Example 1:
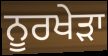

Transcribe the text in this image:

ਨੂਰਖੇੜਾ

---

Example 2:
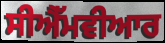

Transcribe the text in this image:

ਸੀਐੱਮਵੀਆਰ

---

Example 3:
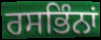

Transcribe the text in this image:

ਰਸਭਿੰਨਾਂ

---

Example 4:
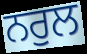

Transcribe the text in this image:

ਨਰੁਲ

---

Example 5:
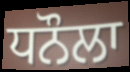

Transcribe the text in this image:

ਧਨੌਲਾ